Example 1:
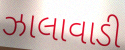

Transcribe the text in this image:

ઝાલાવાડી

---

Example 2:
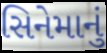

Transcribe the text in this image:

સિનેમાનું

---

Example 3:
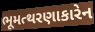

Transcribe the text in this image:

ભૂમત્થરણાકારેન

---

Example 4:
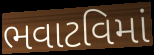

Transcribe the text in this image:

ભવાટવિમાં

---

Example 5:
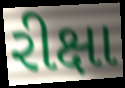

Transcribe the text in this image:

રીક્ષા